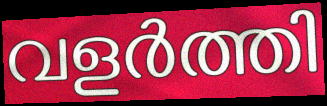
വളർത്തി